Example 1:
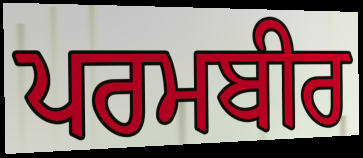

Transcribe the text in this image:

ਪਰਮਬੀਰ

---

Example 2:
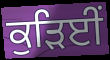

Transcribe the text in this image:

ਕੁੜਿਈਂ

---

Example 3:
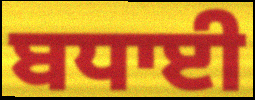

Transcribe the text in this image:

ਬਧਾਈ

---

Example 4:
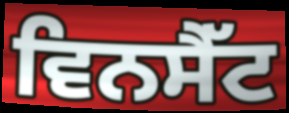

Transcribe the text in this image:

ਵਿਨਸੈੱਟ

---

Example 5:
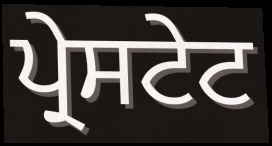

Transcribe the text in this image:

ਪ੍ਰੇਸਟੇਟ